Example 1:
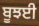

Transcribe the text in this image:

ਬੂਝਈ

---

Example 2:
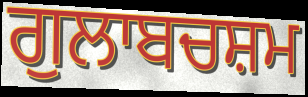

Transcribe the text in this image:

ਗੁਲਾਬਚਸ਼ਮ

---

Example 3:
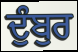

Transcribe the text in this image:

ਦੁੰਬੁਰ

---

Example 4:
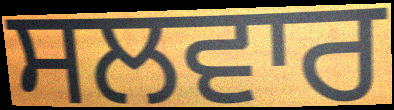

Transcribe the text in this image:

ਸਲਵਾਰ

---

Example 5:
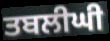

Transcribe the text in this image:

ਤਬਲੀਘੀ